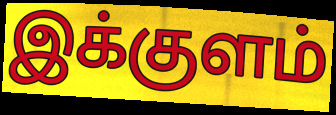
இக்குளம்